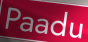
Paadu